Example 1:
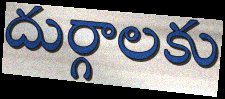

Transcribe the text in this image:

దుర్గాలకు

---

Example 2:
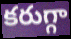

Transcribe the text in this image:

కరుగ్గా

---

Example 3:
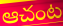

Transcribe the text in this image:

ఆచంట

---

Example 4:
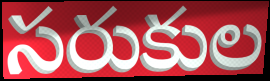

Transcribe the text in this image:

సరుకుల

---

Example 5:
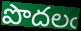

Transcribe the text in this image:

పొదలఁ